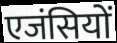
एजंसियों